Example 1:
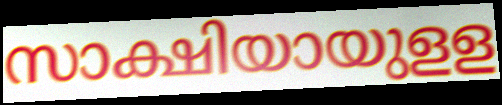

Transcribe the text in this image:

സാക്ഷിയായുളള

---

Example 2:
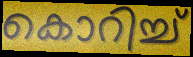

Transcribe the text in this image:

കൊറിച്ച്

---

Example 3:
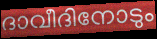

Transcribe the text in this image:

ദാവീദിനോടും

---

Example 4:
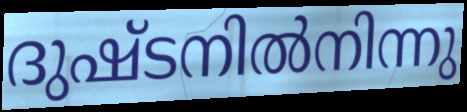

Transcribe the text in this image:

ദുഷ്ടനിൽനിന്നു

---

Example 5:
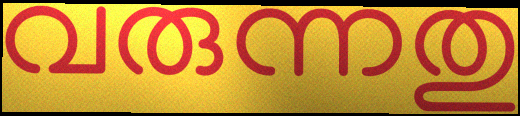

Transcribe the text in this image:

വരുന്നതു